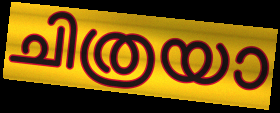
ചിത്രയാ